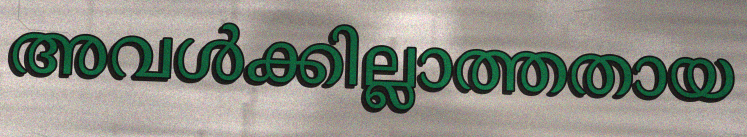
അവൾക്കില്ലാത്തതായ